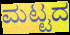
ಮಟ್ಟದ